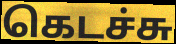
கெடச்சு